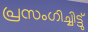
പ്രസംഗിച്ചിട്ടു്